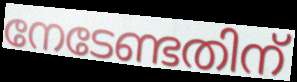
നേടേണ്ടതിന്